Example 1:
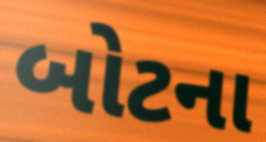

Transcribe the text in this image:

બોટના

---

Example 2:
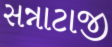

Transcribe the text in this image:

સન્નાટાજી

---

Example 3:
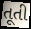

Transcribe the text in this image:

તૂતી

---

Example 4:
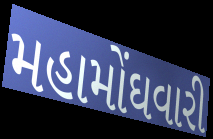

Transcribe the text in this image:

મહામોંઘવારી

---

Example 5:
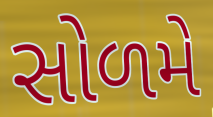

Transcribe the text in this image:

સોળમે